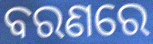
ବରଣରେ